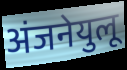
अंजनेयुलू